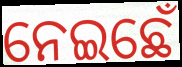
ନେଇଛେଁ